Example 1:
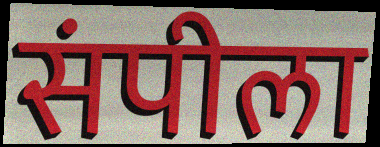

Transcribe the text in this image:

संपीला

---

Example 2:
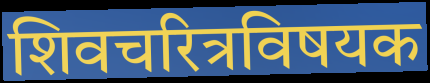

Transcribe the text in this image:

शिवचरित्रविषयक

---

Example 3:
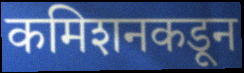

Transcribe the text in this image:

कमिशनकडून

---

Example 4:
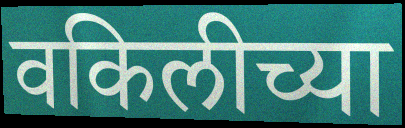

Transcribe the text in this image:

वकिलीच्या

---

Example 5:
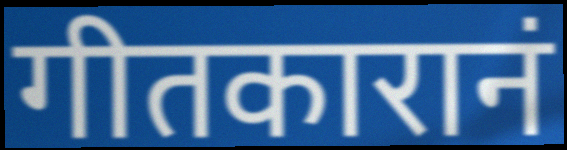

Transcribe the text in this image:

गीतकारानं